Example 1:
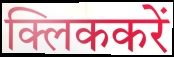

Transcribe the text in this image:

क्लिककरें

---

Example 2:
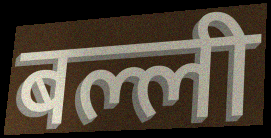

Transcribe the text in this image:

बल्ली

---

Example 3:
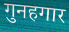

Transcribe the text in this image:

गुनहगार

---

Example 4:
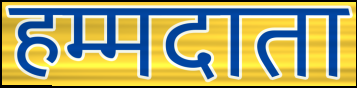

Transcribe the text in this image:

हम्मदाता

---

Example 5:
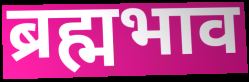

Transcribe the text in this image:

ब्रह्मभाव